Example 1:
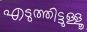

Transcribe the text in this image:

എടുത്തിട്ടുള്ളൂ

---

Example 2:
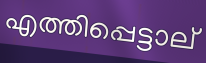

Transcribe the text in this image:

എത്തിപ്പെട്ടാല്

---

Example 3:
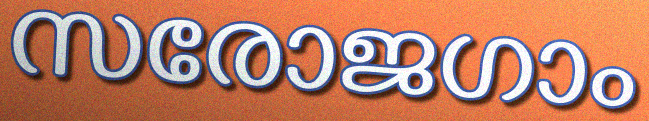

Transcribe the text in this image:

സരോജഗാം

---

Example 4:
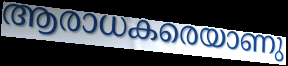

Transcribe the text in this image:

ആരാധകരെയാണു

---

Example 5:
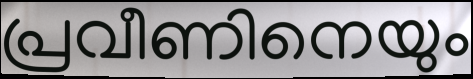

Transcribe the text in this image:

പ്രവീണിനെയും